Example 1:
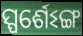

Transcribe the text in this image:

ସ୍ପର୍ଶେଽଙ୍ଗ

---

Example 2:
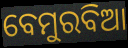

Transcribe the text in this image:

ବେମୁରବିଆ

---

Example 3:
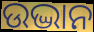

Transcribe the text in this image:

ଉଦ୍ଭାନ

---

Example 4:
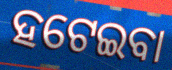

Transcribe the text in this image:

ହଟେଇବା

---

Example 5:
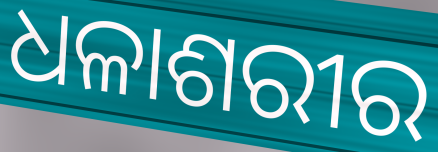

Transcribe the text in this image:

ଧଳାଶରୀର